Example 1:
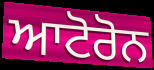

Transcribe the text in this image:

ਆਟੋਰੋਨ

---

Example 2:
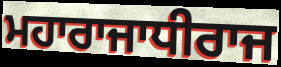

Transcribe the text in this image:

ਮਹਾਰਾਜਾਧੀਰਾਜ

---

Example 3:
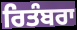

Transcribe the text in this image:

ਰਿਤੰਬਰਾ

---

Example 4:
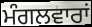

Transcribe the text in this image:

ਮੰਗਲਵਾਰਾਂ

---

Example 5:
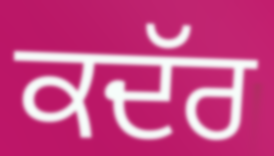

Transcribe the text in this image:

ਕਦੱਰ